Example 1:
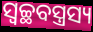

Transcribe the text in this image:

ସ୍ଵଚ୍ଛବସ୍ତ୍ରସ୍ୟ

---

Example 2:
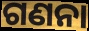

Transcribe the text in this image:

ଗଣନା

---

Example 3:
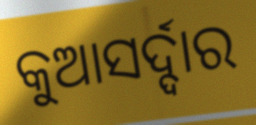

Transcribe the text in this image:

କୁଆସର୍ଦ୍ଦାର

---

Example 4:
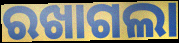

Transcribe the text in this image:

ରଖାଗଲା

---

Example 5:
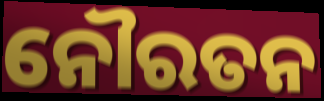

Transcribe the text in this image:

ନୌରତନ